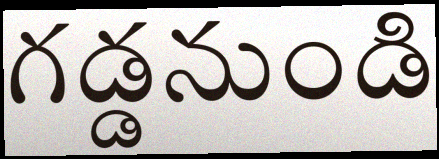
గడ్డనుండి